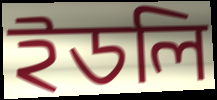
ইডলি